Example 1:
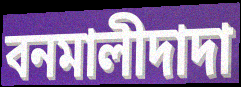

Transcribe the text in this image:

বনমালীদাদা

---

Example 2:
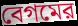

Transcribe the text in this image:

বেগমের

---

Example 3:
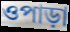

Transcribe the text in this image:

ওপাড়া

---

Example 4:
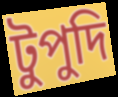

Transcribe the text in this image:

টুপুদি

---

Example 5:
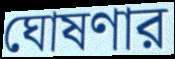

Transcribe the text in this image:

ঘোষণার